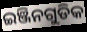
ଇଞ୍ଜିନଗୁଡିକ